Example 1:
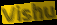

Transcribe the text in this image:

Vishu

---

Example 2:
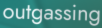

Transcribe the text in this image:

outgassing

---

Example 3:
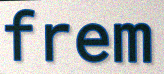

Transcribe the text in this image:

frem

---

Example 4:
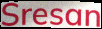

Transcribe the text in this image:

Sresan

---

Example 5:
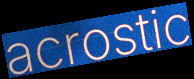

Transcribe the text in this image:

acrostic